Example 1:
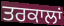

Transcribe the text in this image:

ਤਰਕਾਲਾਂ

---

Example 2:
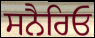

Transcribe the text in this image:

ਸਨੈਰਿਓ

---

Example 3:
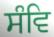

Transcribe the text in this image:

ਸੰਵਿ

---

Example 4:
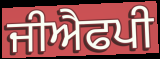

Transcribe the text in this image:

ਜੀਐਫਪੀ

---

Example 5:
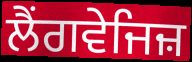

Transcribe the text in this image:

ਲੈਂਗਵੇਜਿਜ਼